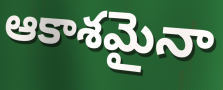
ఆకాశమైనా